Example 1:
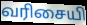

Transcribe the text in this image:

வரிசையி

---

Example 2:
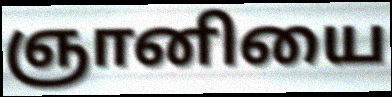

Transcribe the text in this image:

ஞானியை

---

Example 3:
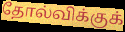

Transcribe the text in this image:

தோல்விக்குக்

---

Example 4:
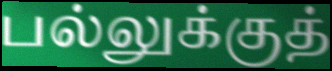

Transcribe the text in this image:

பல்லுக்குத்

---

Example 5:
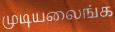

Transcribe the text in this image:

முடியலைங்க